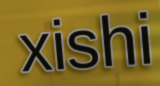
xishi